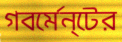
গবর্মেন্‌টের